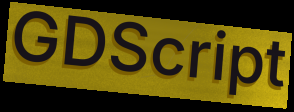
GDScript